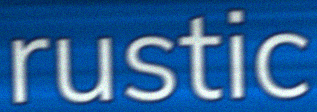
rustic